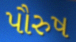
પૌરુષ